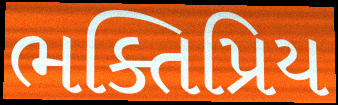
ભક્તિપ્રિય